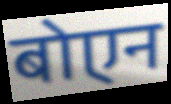
बोएन